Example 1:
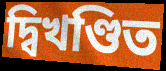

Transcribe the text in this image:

দ্বিখণ্ডিত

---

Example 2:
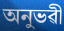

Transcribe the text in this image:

অনুভৱী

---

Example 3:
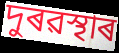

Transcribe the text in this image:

দুৰৱস্থাৰ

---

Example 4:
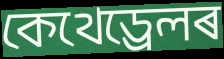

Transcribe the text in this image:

কেথেড্ৰেলৰ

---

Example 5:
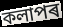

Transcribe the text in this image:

কলাপৰ